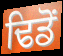
ਢਿਡੋਂ